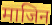
माजिन